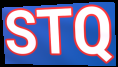
STQ